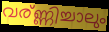
വര്ണ്ണിച്ചാലും